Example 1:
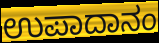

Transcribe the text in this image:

ಉಪಾದಾನಂ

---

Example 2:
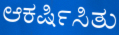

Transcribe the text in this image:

ಆಕರ್ಷಿಸಿತು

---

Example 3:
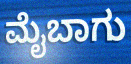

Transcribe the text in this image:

ಮೈಬಾಗು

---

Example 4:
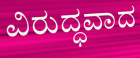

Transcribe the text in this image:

ವಿರುದ್ಧವಾದ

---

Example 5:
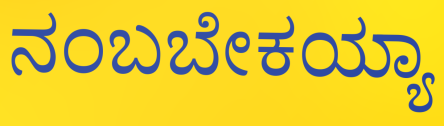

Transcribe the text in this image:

ನಂಬಬೇಕಯ್ಯಾ